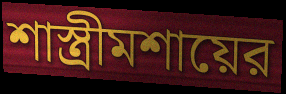
শাস্ত্রীমশায়ের